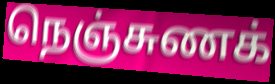
நெஞ்சுணக்